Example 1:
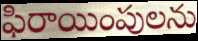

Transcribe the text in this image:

ఫిరాయింపులను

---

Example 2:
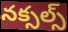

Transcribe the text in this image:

నక్సల్స్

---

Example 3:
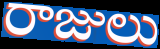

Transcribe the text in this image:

రాజులు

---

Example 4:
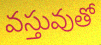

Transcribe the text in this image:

వస్తువుతో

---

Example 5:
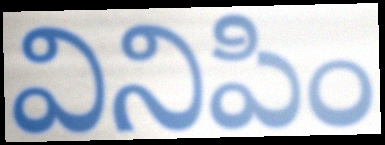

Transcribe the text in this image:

వినిపిం